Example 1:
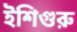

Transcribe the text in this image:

ইশিগুরু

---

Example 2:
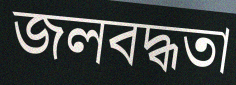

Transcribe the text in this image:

জলবদ্ধতা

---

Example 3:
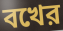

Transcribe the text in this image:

বখের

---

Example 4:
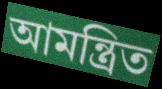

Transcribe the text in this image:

আমন্ত্রিত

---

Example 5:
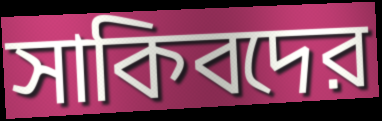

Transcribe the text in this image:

সাকিবদের